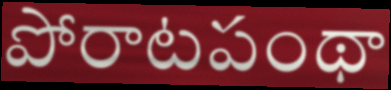
పోరాటపంథా